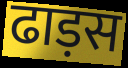
ढाड़स